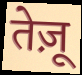
तेज़ू